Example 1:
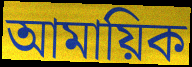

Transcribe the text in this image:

আমায়িক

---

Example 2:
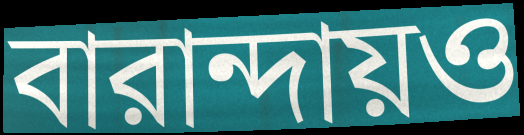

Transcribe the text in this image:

বারান্দায়ও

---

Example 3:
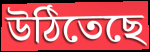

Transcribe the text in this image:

উঠিতেছে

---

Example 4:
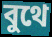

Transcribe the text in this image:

বুথে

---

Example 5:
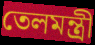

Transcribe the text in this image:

তেলমন্ত্রী